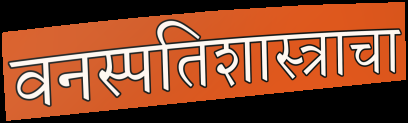
वनस्पतिशास्त्राचा